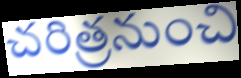
చరిత్రనుంచి